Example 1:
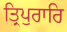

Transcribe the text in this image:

ਤ੍ਰਿਪੁਰਾਰਿ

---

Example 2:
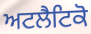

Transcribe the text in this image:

ਅਟਲੈਟਿਕੋ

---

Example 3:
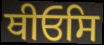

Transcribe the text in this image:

ਥੀਓਸਿ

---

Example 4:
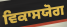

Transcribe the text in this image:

ਵਿਕਾਸਯੋਗ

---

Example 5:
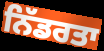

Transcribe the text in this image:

ਨਿੱਡਰਤਾ